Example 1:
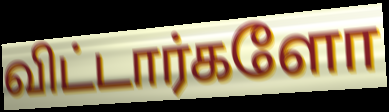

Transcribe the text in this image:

விட்டார்களோ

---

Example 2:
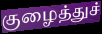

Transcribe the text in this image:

குழைத்துச்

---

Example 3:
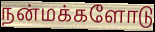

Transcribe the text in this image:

நன்மக்களோடு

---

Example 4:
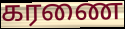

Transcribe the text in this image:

கரணை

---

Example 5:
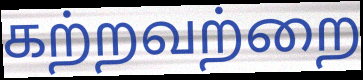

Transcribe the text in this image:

கற்றவற்றை